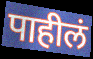
पाहीलं